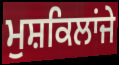
ਮੁਸ਼ਕਿਲਾਂਜੇ